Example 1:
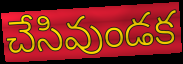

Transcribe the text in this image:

చేసివుండక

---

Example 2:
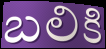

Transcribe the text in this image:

బలికి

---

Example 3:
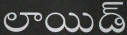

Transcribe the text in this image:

లాయిడ్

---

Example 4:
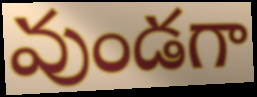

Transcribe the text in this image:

వుండగా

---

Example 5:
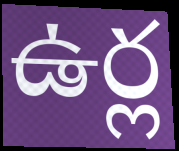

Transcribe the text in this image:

ఉర్ల